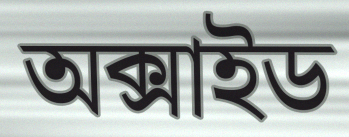
অক্সাইড